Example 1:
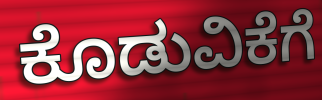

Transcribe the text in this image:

ಕೊಡುವಿಕೆಗೆ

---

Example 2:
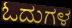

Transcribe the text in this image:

ಓದುಗಳ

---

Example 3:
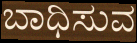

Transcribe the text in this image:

ಬಾಧಿಸುವ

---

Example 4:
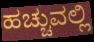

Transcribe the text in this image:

ಹಚ್ಚುವಲ್ಲಿ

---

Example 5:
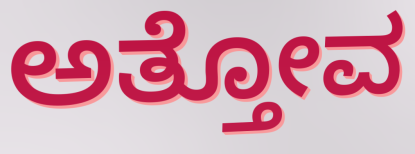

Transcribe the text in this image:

ಅತ್ತೋವ